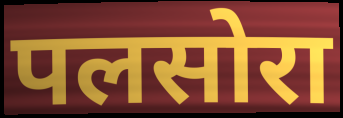
पलसोरा